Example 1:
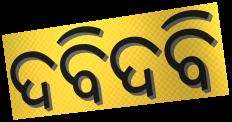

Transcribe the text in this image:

ଦବିଦବି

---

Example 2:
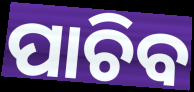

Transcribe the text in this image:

ପାଚିବ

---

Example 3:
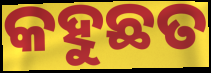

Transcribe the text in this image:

କହୁଛତ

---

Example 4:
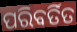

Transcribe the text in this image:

ପରିବର୍ତିତ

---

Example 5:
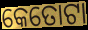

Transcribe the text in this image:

କେତୋଟା